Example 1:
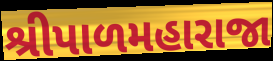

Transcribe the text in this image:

શ્રીપાળમહારાજા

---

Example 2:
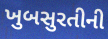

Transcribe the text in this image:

ખુબસુરતીની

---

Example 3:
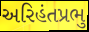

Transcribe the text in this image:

અરિહંતપ્રભુ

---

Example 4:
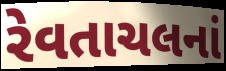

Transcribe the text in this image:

રેવતાચલનાં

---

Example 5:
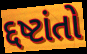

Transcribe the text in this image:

દ્દષ્ટાંતો